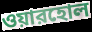
ওয়ারহোল